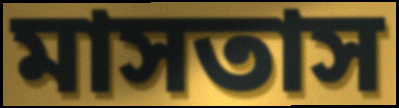
মাসতাস